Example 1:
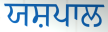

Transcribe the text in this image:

ਯਸ਼ਪਾਲ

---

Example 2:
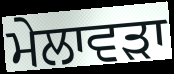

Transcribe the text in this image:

ਮੇਲਾਵੜਾ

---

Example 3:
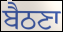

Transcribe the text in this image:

ਬੈਠਣਾ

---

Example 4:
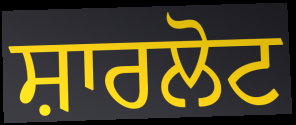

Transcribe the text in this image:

ਸ਼ਾਰਲੋਟ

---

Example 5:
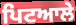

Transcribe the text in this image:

ਪਿਟਆਲੇ